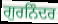
ਗੁਰਨਿੰਦਰ